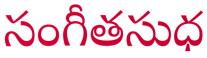
సంగీతసుధ